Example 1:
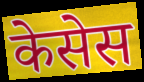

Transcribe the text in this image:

केसेस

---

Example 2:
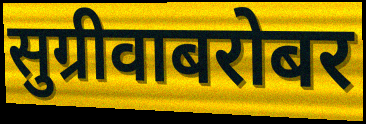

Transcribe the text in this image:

सुग्रीवाबरोबर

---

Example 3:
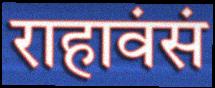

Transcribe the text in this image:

राहावंसं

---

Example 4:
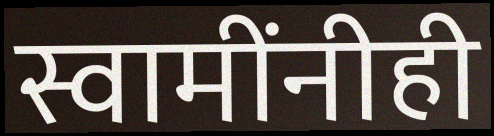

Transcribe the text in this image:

स्वामींनीही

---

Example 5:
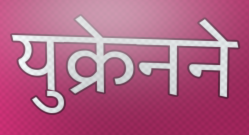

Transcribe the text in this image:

युक्रेनने